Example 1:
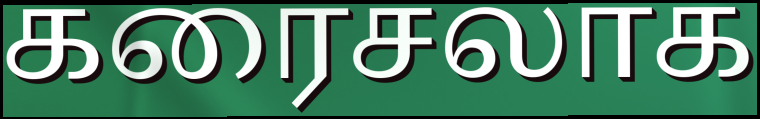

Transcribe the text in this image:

கரைசலாக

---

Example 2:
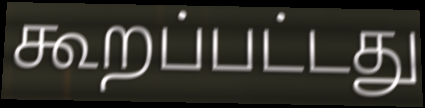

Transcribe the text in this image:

கூறப்பட்டது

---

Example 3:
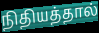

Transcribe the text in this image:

நிதியத்தால்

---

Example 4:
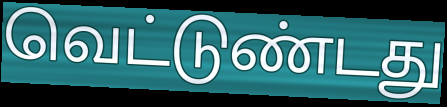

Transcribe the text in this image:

வெட்டுண்டது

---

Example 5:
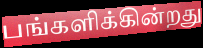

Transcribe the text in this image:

பங்களிக்கின்றது